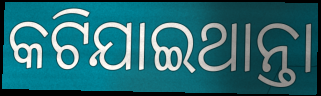
କଟିଯାଇଥାନ୍ତା